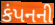
કંપનની